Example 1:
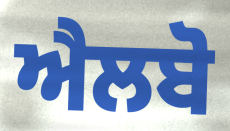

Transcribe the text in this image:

ਐਲਬੋ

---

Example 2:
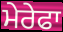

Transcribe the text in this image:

ਮੇਰੇਫਾ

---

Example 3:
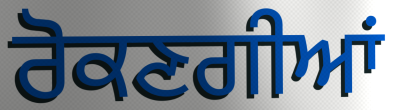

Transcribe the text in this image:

ਰੋਕਣਗੀਆਂ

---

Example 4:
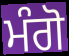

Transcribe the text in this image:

ਮੰਗੋ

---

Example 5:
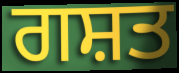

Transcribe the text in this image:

ਗਸ਼ਤ